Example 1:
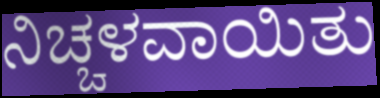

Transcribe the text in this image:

ನಿಚ್ಚಳವಾಯಿತು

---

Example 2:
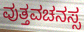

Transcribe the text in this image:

ವುತ್ತವಚನಸ್ಸ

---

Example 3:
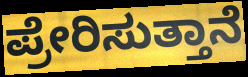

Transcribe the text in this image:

ಪ್ರೇರಿಸುತ್ತಾನೆ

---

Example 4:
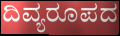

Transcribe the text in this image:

ದಿವ್ಯರೂಪದ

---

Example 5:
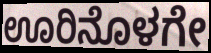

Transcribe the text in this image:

ಊರಿನೊಳಗೇ